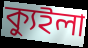
ক্যুইলা